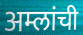
अम्‍लांची